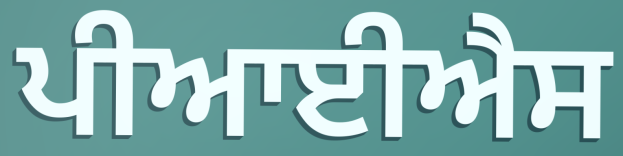
ਪੀਆਈਐਸ